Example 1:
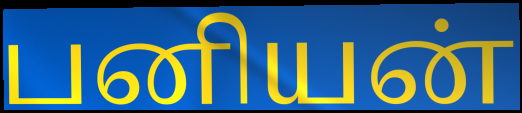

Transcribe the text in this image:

பனியன்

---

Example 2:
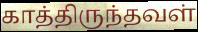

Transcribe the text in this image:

காத்திருந்தவள்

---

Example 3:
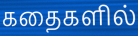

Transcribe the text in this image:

கதைகளில்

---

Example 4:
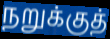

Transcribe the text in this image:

நறுக்குத்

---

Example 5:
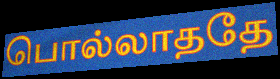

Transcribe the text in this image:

பொல்லாததே